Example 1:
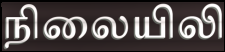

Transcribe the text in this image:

நிலையிலி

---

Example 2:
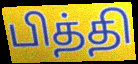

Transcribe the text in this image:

பித்தி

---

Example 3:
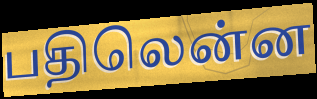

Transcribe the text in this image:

பதிலென்ன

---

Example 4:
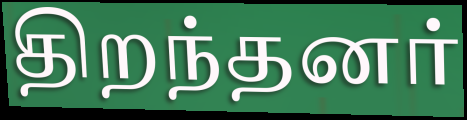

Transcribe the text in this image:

திறந்தனர்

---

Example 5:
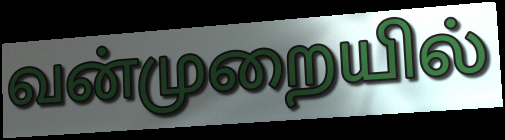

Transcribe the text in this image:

வன்முறையில்